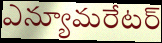
ఎన్యూమరేటర్